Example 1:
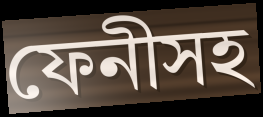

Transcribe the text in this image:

ফেনীসহ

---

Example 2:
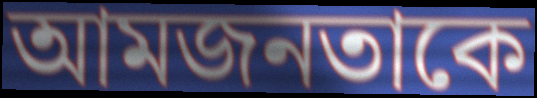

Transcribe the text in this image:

আমজনতাকে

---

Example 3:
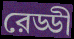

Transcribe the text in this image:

রেড্ডী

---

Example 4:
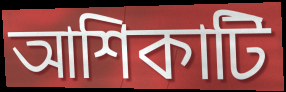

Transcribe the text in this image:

আশিকাটি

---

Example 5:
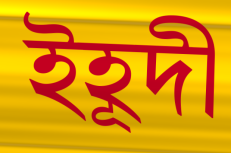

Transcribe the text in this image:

ইহূদী